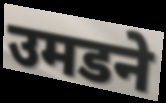
उमडने